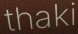
thaki